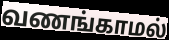
வணங்காமல்